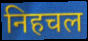
निहचल